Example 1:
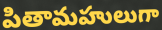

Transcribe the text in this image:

పితామహులుగా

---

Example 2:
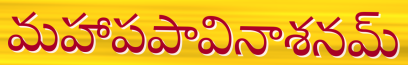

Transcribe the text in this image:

మహాపపావినాశనమ్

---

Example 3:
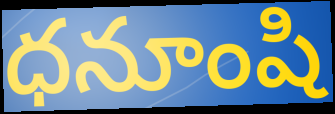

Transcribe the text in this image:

ధనూంషి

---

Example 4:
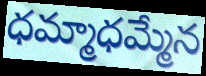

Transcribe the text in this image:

ధమ్మాధమ్మేన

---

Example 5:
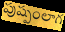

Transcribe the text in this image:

పుష్పంలాగ